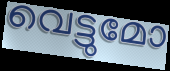
വെട്ടുമോ